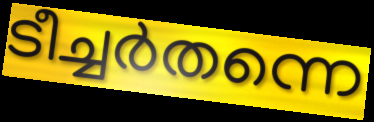
ടീച്ചർതന്നെ